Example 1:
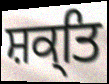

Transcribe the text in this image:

ਸ਼ਕ੍ਤਿ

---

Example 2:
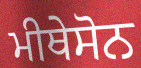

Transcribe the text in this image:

ਮੀਥੇਸੋਨ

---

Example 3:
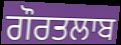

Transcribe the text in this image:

ਗੌਰਤਲਾਬ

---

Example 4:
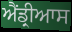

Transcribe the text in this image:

ਐਂਡ੍ਰੀਆਸ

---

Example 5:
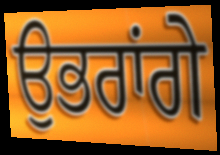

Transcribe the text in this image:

ਉਭਰਾਂਗੇ